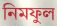
নিমফুল